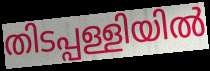
തിടപ്പള്ളിയിൽ